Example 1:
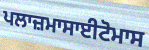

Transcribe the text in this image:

ਪਲਾਜ਼ਮਾਸਾਈਟੋਮਾਸ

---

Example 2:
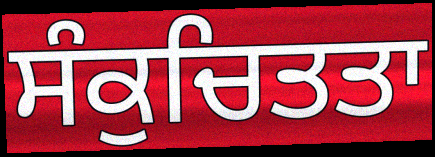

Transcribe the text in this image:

ਸੰਕੁਚਿਤਤਾ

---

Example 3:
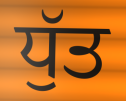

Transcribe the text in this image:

ਧੁੱਤ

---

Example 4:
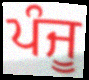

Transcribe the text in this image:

ਪੰਜੂ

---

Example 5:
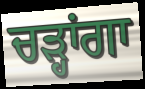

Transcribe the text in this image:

ਚੜ੍ਹਾਂਗਾ